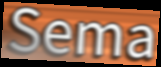
Sema